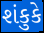
શંકુકે